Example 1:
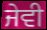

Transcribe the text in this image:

ਜੇਵੀ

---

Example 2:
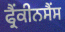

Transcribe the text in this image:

ਫ੍ਰੈਂਕੀਨਸੈਂਸ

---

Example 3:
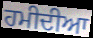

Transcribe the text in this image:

ਹਮੀਦੀਆ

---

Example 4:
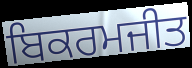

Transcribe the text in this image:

ਬਿਕਰਮਜੀਤ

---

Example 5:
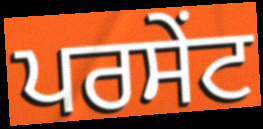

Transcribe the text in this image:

ਪਰਸੇੰਟ